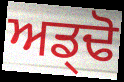
ਅਡ੍ਢੋ